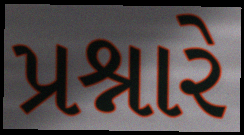
પ્રશ્નારે